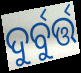
ଦୁର୍ବୁର୍ତ୍ତ